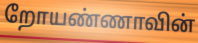
றோயண்ணாவின்